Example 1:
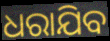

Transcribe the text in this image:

ଧରାଯିବ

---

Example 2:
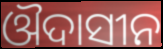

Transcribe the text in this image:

ଔଦାସୀନ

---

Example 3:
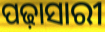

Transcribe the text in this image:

ପଢ଼ାସାରୀ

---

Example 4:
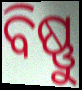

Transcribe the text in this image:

ବିଷ୍ଣୁ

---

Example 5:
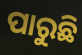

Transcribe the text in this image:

ପାରୁଛି